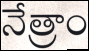
నేత్రాం